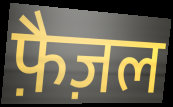
फ़ैज़ल